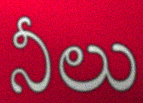
నీలు